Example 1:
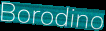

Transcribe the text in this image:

Borodino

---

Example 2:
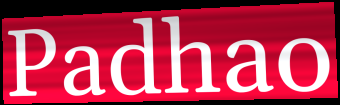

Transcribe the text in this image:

Padhao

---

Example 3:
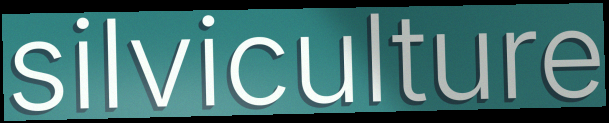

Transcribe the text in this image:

silviculture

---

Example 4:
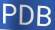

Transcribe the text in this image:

PDB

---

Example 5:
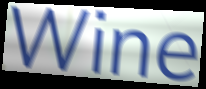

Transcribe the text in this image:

Wine